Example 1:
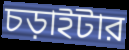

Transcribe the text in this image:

চড়াইটার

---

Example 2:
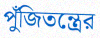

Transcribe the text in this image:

পুঁজিতন্ত্রের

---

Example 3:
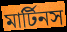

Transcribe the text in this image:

মার্টিনস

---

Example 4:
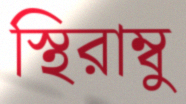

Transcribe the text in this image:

স্থিরাম্বু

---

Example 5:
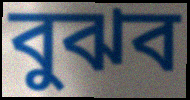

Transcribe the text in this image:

বুঝব